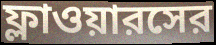
ফ্লাওয়ারসের